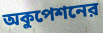
অকুপেশনের